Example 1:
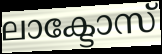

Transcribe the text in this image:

ലാക്ടോസ്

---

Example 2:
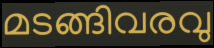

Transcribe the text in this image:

മടങ്ങിവരവു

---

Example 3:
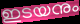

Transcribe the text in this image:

ഇടയനും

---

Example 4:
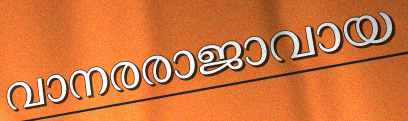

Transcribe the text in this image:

വാനരരാജാവായ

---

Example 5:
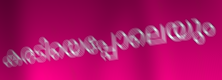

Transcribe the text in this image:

കരടിയെപ്പോലെയും